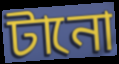
টানো